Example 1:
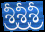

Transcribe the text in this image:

శ్రీశ్రీశ్రీ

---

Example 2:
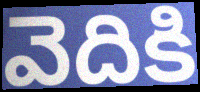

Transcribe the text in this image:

వెదికి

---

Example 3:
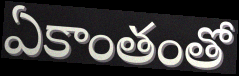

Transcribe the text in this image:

ఏకాంతంతో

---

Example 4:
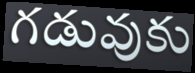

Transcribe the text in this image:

గడువుకు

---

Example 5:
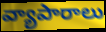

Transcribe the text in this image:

వ్యాపారాలు